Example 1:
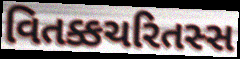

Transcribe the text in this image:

વિતક્કચરિતસ્સ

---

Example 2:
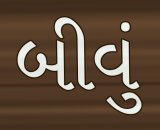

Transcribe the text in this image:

બીવું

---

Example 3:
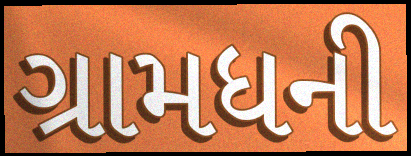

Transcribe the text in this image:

ગ્રામધની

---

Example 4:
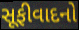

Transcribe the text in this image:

સૂફીવાદનો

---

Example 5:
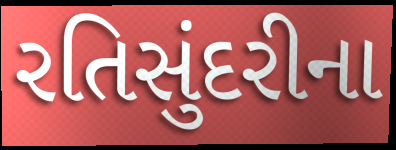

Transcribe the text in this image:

રતિસુંદરીના